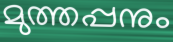
മുത്തപ്പനും